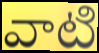
వాటి